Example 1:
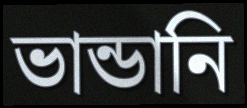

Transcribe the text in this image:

ভান্ডানি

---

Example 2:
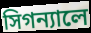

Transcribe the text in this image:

সিগন্যালে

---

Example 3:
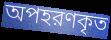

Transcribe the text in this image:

অপহরণকৃত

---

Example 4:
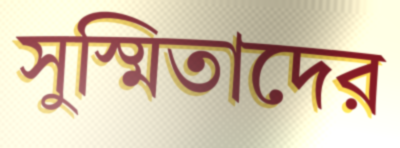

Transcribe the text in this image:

সুস্মিতাদের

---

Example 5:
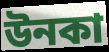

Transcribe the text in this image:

উনকা